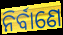
ନିର୍ବାଣେ